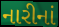
નારીનાં